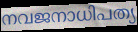
നവജനാധിപത്യ